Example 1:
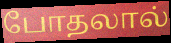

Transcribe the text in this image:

போதலால்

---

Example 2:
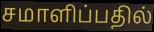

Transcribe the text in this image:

சமாளிப்பதில்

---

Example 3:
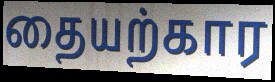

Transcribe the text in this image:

தையற்கார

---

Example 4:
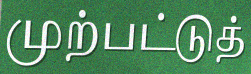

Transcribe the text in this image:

முற்பட்டுத்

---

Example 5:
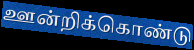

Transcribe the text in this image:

ஊன்றிக்கொண்டு